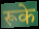
रूके